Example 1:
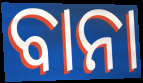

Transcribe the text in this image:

ବାନା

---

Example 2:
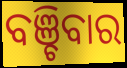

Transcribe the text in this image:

ବଞ୍ଚିବାର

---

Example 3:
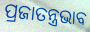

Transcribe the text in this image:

ପ୍ରଜାତନ୍ତ୍ରଭାବ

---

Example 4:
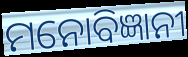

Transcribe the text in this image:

ମନୋବିଜ୍ଞାନୀ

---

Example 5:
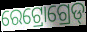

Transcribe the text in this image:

ରେଟ୍ରୋଗ୍ରେଡ୍